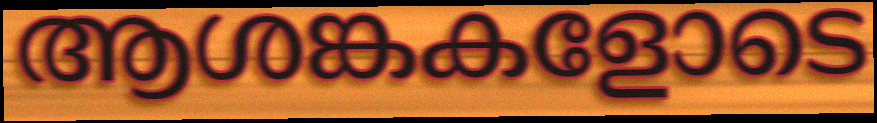
ആശങ്കകളോടെ